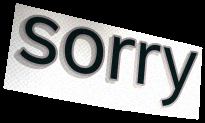
sorry